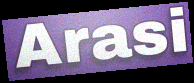
Arasi